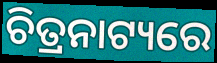
ଚିତ୍ରନାଟ୍ୟରେ